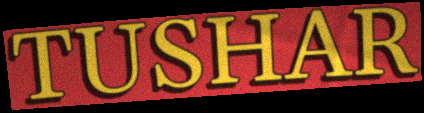
TUSHAR